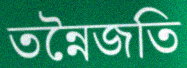
তন্নৈজতি